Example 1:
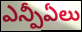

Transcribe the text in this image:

ఎన్పీఏలు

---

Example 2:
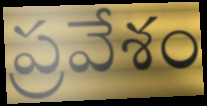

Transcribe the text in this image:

ప్రవేశం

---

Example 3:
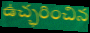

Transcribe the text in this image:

ఉచ్ఛరించిన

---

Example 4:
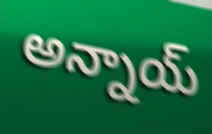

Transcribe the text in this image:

అన్నాయ్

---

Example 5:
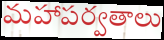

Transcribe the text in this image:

మహాపర్వతాలు